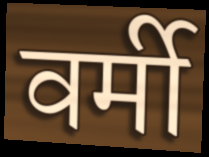
वर्मी